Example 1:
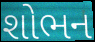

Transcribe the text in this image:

શોભન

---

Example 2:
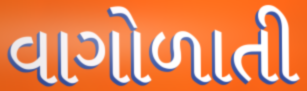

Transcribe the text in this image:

વાગોળાતી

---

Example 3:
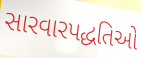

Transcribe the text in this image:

સારવારપદ્ધતિઓ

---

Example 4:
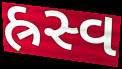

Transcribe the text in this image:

હ્રસ્વ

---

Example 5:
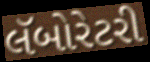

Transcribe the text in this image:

લૅબોરેટરી